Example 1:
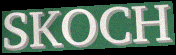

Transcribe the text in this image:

SKOCH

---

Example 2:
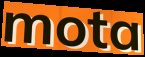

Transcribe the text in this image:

mota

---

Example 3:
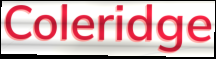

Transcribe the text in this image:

Coleridge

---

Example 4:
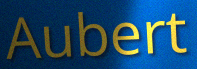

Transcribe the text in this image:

Aubert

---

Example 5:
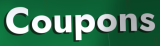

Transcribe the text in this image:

Coupons